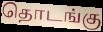
தொடங்கு